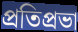
প্রতিপ্রভা